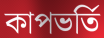
কাপভর্তি